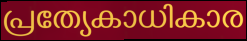
പ്രത്യേകാധികാര